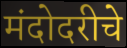
मंदोदरीचे